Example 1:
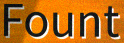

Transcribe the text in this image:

Fount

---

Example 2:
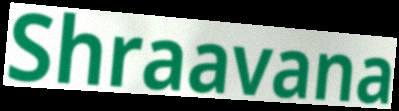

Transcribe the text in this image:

Shraavana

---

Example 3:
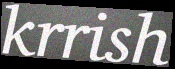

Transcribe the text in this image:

krrish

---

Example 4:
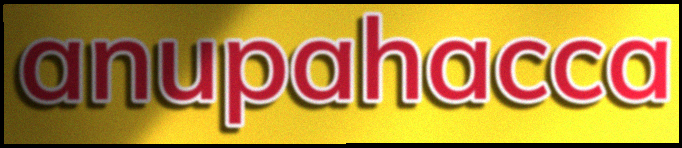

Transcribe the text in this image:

anupahacca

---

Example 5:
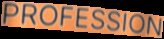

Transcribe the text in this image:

PROFESSION